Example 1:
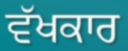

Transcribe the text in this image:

ਵੱਖਕਾਰ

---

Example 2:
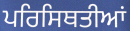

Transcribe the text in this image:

ਪਰਿਸਿਥਤੀਆਂ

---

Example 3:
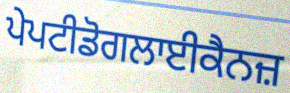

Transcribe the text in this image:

ਪੇਪਟੀਡੋਗਲਾਈਕੈਨਜ਼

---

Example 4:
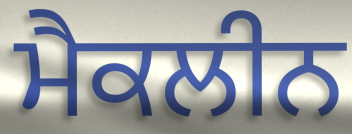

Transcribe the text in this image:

ਮੈਕਲੀਨ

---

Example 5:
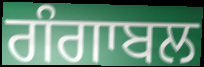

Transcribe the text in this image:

ਗੰਗਾਬਲ